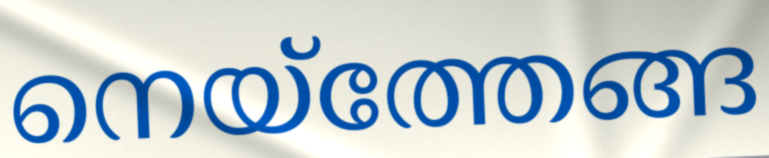
നെയ്ത്തേങ്ങ